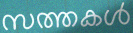
സത്തകൾ